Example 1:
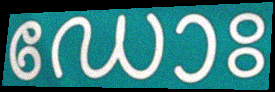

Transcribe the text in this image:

ഡോഃ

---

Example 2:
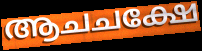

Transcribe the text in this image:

ആചചക്ഷേ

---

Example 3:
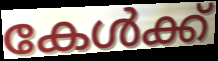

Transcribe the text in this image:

കേൾക്ക്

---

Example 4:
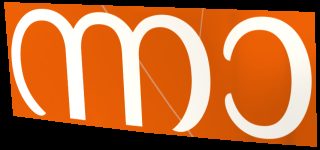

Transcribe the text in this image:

ന്നാ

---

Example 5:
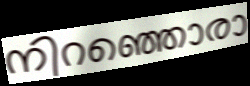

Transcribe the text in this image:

നിറഞ്ഞൊരാ